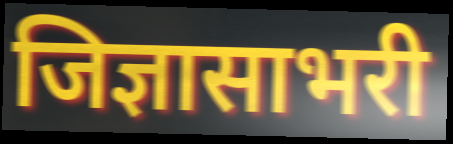
जिज्ञासाभरी